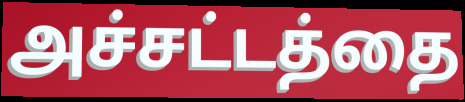
அச்சட்டத்தை